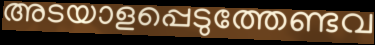
അടയാളപ്പെടുത്തേണ്ടവ